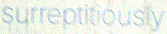
surreptitiously